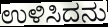
ಉಳಿಸಿದನು